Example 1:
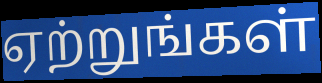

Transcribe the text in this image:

ஏற்றுங்கள்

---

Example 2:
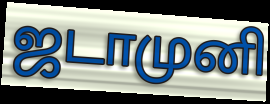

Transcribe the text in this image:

ஜடாமுனி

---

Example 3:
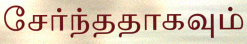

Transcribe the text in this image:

சேர்ந்ததாகவும்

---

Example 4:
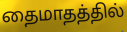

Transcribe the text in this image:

தைமாதத்தில்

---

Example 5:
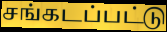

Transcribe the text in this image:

சங்கடப்பட்டு